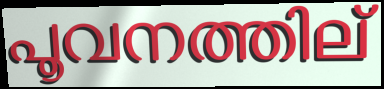
പൂവനത്തില്